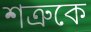
শত্রুকে